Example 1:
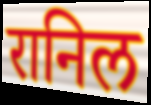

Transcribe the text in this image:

रानिल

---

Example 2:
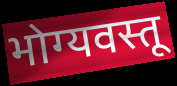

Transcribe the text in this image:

भोग्यवस्तू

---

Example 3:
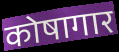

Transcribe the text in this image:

कोषागार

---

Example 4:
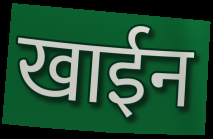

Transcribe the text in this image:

खाईन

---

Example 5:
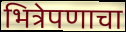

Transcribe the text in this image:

भित्रेपणाचा